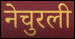
नेचुरली